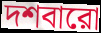
দশবারো